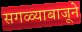
सगळ्याबाजूने